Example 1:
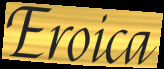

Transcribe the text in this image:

Eroica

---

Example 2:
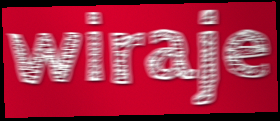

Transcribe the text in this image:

wiraje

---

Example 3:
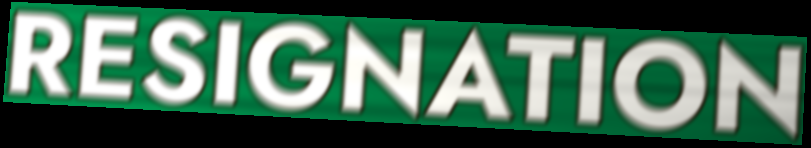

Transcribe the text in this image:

RESIGNATION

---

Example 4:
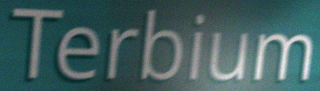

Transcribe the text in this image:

Terbium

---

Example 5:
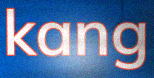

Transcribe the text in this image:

kang